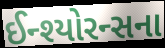
ઈન્શ્યોરન્સના